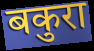
बकुरा